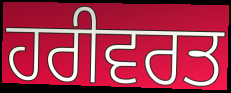
ਹਰੀਵਰਤ